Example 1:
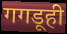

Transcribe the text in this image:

गगडूही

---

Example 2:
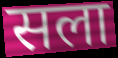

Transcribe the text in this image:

सला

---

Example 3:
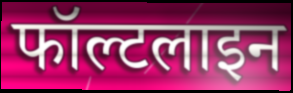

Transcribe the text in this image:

फॉल्टलाइन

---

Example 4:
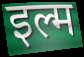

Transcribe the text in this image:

इल्म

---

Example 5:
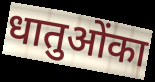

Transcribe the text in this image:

धातुओंका